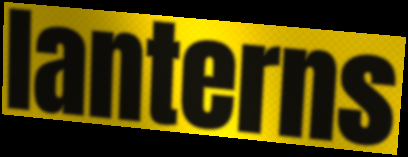
lanterns